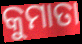
କୁମାତା